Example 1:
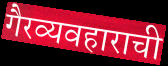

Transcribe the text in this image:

गैरव्यवहाराची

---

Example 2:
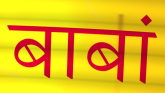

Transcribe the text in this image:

बाबां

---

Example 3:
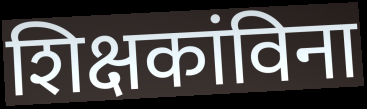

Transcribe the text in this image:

शिक्षकांविना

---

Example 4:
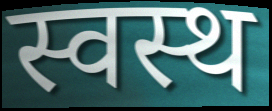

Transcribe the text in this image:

स्वस्थ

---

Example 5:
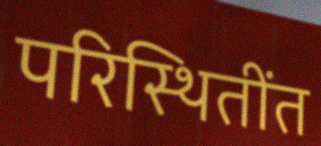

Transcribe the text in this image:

परिस्थितींत